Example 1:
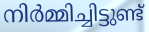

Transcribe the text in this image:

നിർമ്മിച്ചിട്ടുണ്ട്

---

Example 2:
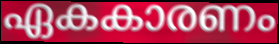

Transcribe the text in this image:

ഏകകാരണം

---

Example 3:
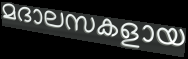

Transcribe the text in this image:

മദാലസകളായ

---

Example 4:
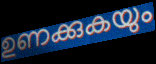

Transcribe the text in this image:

ഉണക്കുകയും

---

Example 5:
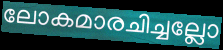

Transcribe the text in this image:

ലോകമാരചിച്ചല്ലോ